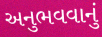
અનુભવવાનું